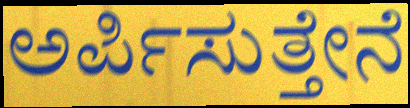
ಅರ್ಪಿಸುತ್ತೇನೆ